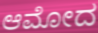
ಆಮೋದ